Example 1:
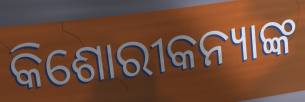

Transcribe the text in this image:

କିଶୋରୀକନ୍ୟାଙ୍କ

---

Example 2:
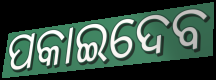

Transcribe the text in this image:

ପକାଇଦେବ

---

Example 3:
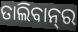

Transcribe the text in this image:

ତାଲିବାନ୍‌ର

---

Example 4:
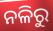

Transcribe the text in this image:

ନଳିରୁ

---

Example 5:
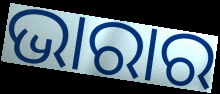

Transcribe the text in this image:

ଭାରାର